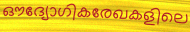
ഔദ്യോഗികരേഖകളിലെ